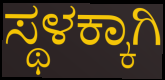
ಸ್ಥಳಕ್ಕಾಗಿ